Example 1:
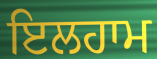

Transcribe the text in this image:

ਇਲਹਾਮ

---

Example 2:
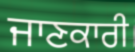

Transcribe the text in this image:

ਜਾਣਕਾਰੀ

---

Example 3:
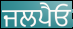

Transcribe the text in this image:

ਜਲਪੈਓ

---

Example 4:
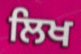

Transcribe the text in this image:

ਲਿਖ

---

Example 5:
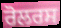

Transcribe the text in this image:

ਰੋਲਰਸ